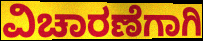
ವಿಚಾರಣೆಗಾಗಿ